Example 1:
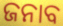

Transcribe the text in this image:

ଜନାବ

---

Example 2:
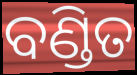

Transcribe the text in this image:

ବଣ୍ଡିତ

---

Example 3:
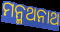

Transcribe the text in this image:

ମନ୍ମଥନାଥ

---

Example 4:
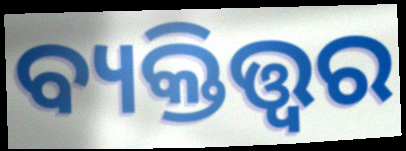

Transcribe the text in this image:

ବ୍ୟକ୍ତିତ୍ତ୍ଵର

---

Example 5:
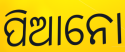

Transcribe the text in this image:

ପିଆନୋ